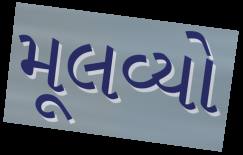
મૂલવ્યો